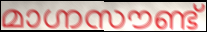
മാഗ്നസൗണ്ട്